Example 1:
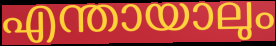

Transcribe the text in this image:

എന്തായാലും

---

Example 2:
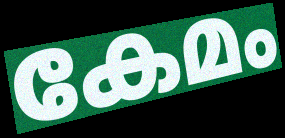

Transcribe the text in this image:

കേമം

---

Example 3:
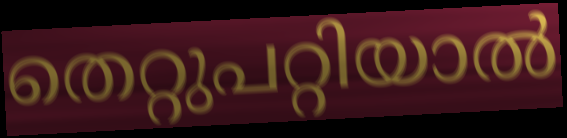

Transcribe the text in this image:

തെറ്റുപറ്റിയാൽ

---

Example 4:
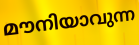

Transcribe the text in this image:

മൗനിയാവുന്ന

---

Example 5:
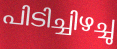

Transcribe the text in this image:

പിടിച്ചിഴച്ചു